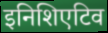
इनिशिएटिव